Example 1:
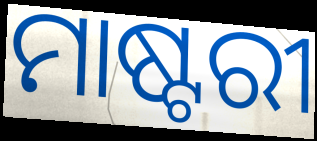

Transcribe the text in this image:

ମାଷ୍ଟରୀ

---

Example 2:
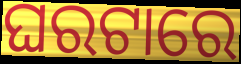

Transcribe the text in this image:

ଘରଟାରେ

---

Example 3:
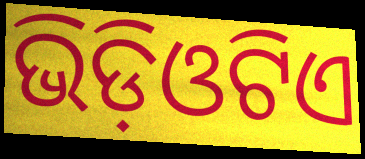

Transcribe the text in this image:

ଭିଡ଼ିଓଟିଏ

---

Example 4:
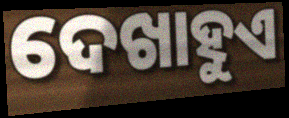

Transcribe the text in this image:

ଦେଖାହୁଏ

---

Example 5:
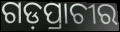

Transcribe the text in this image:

ଗଡ଼ପ୍ରାଚୀର